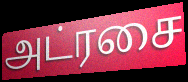
அட்ரசை